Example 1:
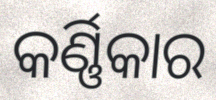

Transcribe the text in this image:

କର୍ଣ୍ଣିକାର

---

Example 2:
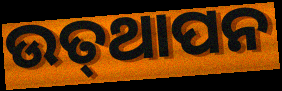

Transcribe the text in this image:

ଉତ୍‌ଥାପନ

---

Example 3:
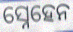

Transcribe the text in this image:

ସ୍ନେହେନ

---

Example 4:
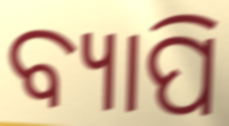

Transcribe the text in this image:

ବ୍ୟାପି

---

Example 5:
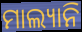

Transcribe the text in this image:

ମାଲ୍ୟାନି